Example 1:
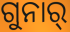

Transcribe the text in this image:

ଗୁନାର୍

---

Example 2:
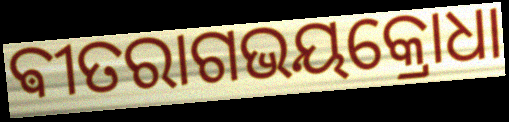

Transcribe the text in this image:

ଵୀତରାଗଭୟକ୍ରୋଧା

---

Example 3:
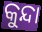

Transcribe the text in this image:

କୁନ୍ଦା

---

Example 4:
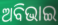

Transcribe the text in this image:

ଅବିଭାଇ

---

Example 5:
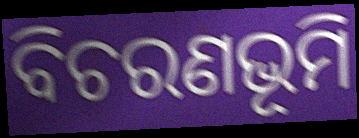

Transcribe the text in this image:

ବିଚରଣଭୂମି